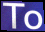
To